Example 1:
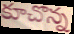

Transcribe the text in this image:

కూచొన్న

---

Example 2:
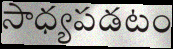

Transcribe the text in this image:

సాధ్యపడటం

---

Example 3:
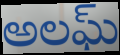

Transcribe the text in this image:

అలఘ్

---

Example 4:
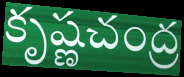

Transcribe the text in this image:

కృష్ణచంద్ర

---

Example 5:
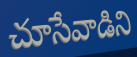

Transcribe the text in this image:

చూసేవాడిని